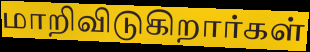
மாறிவிடுகிறார்கள்